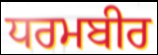
ਧਰਮਬੀਰ